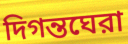
দিগন্তঘেরা